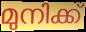
മുനിക്ക്